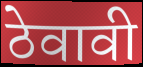
ठेवावी